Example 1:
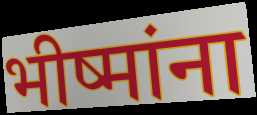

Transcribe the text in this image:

भीष्मांना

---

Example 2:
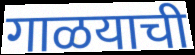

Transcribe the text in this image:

गाळयाची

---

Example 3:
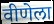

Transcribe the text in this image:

वीणेला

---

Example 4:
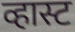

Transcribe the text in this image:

व्हास्ट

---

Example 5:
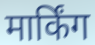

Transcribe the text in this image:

मार्किंग